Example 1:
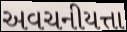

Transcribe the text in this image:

અવચનીયત્તા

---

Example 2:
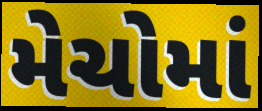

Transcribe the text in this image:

મેચોમાં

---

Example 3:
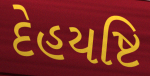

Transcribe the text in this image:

દેહયષ્ટિ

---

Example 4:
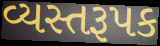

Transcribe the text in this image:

વ્યસ્તરૂપક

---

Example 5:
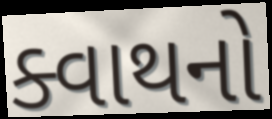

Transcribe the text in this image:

ક્વાથનો